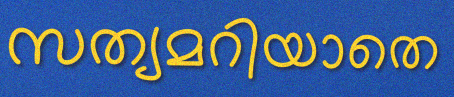
സത്യമറിയാതെ